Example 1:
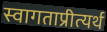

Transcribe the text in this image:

स्वागताप्रीत्यर्थ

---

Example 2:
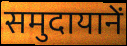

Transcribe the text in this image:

समुदायानें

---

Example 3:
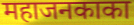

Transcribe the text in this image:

महाजनकाका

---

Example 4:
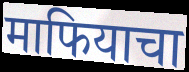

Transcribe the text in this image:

माफियाचा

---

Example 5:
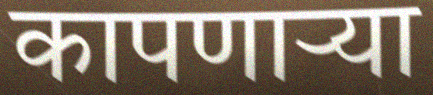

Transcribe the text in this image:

कापणाऱ्या